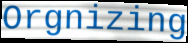
Orgnizing